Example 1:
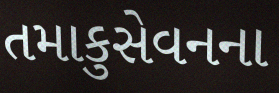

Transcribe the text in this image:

તમાકુસેવનના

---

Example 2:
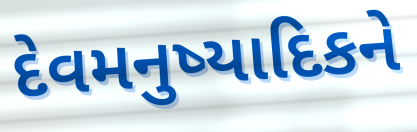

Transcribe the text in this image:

દેવમનુષ્યાદિકને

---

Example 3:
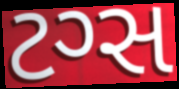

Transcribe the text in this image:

ટગ્સ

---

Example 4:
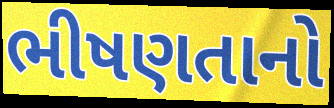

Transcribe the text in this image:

ભીષણતાનો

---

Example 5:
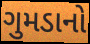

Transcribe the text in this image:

ગુમડાનો